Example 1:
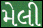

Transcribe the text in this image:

મેલી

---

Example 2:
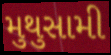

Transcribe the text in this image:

મુથુસામી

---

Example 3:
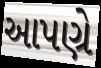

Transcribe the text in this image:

આપણ્રે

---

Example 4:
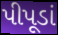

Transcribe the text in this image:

પીપૂડાં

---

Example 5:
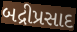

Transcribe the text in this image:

બદ્રીપ્રસાદ